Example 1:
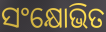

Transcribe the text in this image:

ସଂକ୍ଷୋଭିତ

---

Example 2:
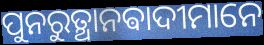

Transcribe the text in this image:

ପୁନରୁତ୍ଥାନଵାଦୀମାନେ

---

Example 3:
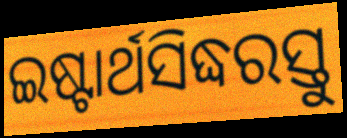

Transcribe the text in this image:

ଇଷ୍ଟାର୍ଥସିଦ୍ଧରସ୍ତୁ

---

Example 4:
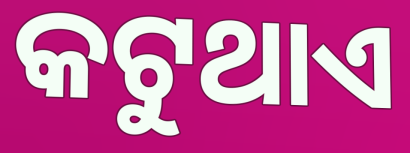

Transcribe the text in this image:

କଟୁଥାଏ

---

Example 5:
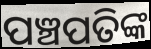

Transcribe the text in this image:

ପଞ୍ଚପତିଙ୍କ